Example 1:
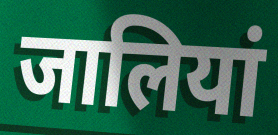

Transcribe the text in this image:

जालियां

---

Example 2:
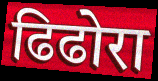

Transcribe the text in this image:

ढिढोरा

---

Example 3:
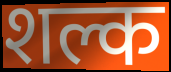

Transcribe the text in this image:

शल्क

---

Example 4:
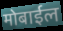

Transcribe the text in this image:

मोबाईल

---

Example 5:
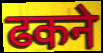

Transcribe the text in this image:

ढकने